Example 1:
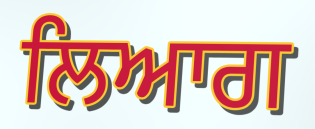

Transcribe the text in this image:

ਲਿਆਗ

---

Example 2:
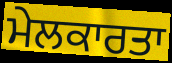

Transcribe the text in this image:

ਮੇਲਕਾਰਤਾ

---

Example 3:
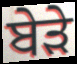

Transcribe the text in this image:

ਬੇੜੇ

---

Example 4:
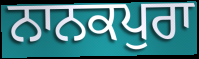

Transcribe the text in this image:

ਨਾਨਕਪੁਰਾ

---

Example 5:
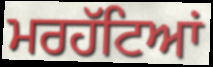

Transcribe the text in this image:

ਮਰਹੱਟਿਆਂ